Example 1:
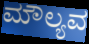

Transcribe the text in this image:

ಮೌಲ್ಯವ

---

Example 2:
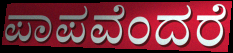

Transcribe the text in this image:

ಪಾಪವೆಂದರೆ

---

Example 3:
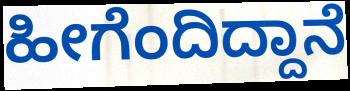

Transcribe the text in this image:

ಹೀಗೆಂದಿದ್ದಾನೆ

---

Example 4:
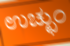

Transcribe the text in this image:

ಉಚ್ಛುಂ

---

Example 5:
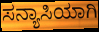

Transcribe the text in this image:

ಸನ್ಯಾಸಿಯಾಗಿ